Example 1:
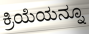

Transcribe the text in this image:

ಕ್ರಿಯೆಯನ್ನೂ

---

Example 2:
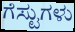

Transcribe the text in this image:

ಗೆಸ್ಟುಗಳು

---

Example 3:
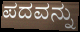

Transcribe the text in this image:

ಪದವನ್ನು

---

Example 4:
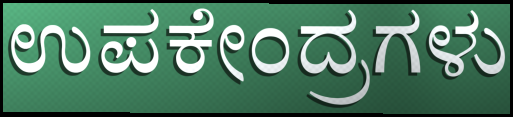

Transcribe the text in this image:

ಉಪಕೇಂದ್ರಗಳು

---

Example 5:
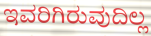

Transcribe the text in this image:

ಇವರಿಗಿರುವುದಿಲ್ಲ